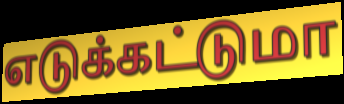
எடுக்கட்டுமா